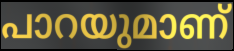
പാറയുമാണ്